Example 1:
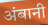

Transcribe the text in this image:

अंबानी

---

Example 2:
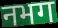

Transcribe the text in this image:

नभग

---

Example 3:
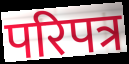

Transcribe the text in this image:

परिपत्र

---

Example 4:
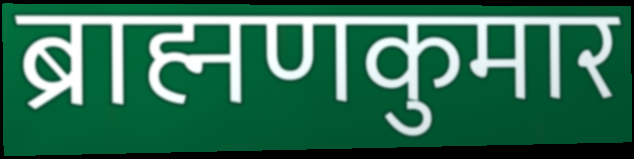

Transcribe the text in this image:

ब्राह्मणकुमार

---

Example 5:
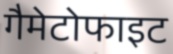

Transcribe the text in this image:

गैमेटोफाइट